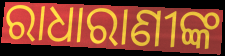
ରାଧାରାଣୀଙ୍କ